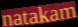
natakam